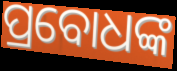
ପ୍ରବୋଧଙ୍କ